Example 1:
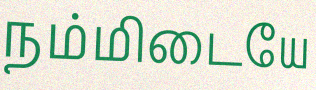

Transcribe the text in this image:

நம்மிடையே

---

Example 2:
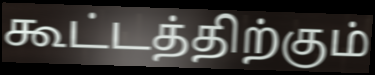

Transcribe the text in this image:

கூட்டத்திற்கும்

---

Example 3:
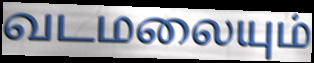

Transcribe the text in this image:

வடமலையும்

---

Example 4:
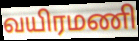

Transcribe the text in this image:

வயிரமணி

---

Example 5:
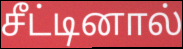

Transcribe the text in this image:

சீட்டினால்